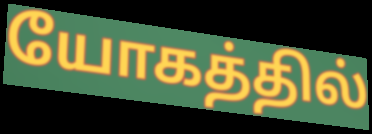
யோகத்தில்